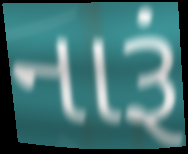
નારૂં